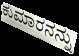
ಕುಮಾರನನ್ನು